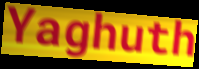
Yaghuth